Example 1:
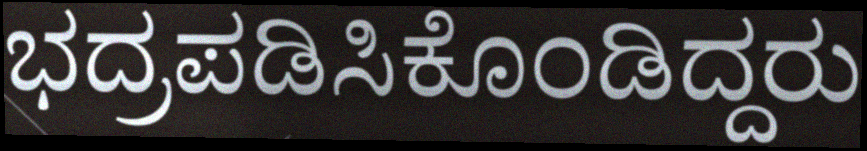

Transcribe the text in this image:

ಭದ್ರಪಡಿಸಿಕೊಂಡಿದ್ದರು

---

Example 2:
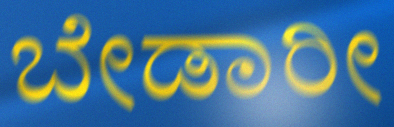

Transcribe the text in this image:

ಬೇಡಾರೀ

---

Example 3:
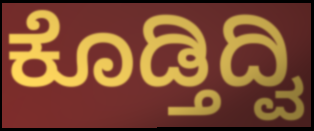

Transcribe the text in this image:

ಕೊಡ್ತಿದ್ವಿ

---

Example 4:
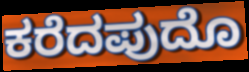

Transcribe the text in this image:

ಕರೆದಪುದೊ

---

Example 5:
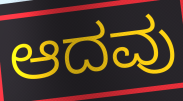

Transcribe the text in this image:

ಆದವು